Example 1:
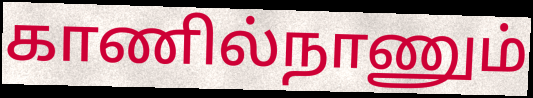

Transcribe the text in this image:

காணில்நாணும்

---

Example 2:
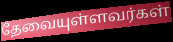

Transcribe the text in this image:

தேவையுள்ளவர்கள்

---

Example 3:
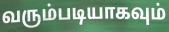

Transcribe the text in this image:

வரும்படியாகவும்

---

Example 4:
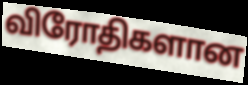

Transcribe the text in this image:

விரோதிகளான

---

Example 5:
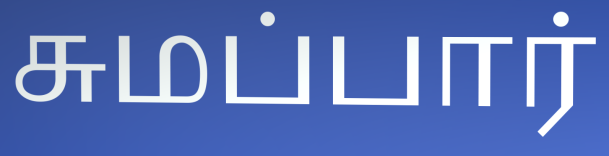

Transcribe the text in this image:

சுமப்பார்